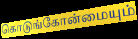
கொடுங்கோன்மையும்